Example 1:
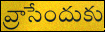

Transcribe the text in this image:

వ్రాసేందుకు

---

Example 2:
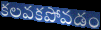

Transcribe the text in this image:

కలవకపోవడం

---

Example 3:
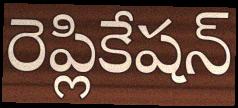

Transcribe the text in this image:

రెప్లికేషన్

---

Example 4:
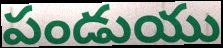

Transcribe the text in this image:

పండుయు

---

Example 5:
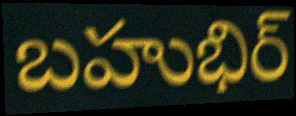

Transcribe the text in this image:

బహుభిర్